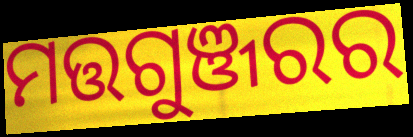
ମତ୍ତଗୁଞ୍ଜରର